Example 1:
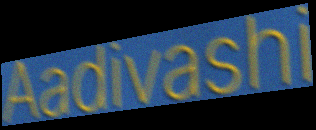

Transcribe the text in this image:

Aadivashi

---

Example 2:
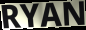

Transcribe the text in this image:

RYAN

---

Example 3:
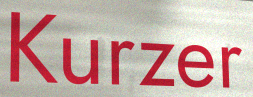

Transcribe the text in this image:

Kurzer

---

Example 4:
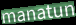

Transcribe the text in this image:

manatun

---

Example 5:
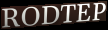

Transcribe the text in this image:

RODTEP